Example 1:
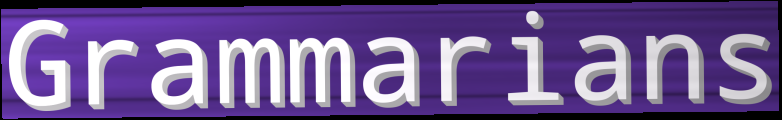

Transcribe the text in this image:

Grammarians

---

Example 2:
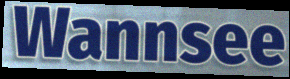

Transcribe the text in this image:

Wannsee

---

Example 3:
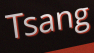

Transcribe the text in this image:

Tsang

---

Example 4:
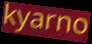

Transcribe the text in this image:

kyarno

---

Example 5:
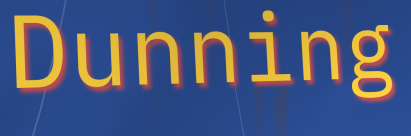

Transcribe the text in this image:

Dunning